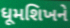
ધૂમશિખને